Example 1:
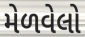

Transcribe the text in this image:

મેળવેલો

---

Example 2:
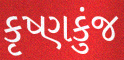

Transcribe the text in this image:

કૃષ્ણકુંજ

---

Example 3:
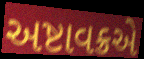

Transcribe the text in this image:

અષ્ટાવક્રએ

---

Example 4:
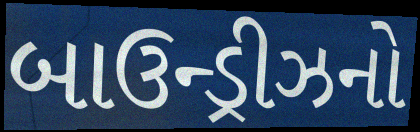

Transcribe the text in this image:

બાઉન્ડ્રીઝનો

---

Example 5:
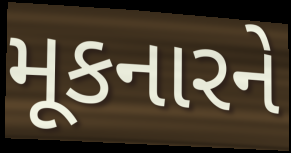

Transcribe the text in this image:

મૂકનારને